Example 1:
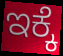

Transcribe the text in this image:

ಇಕ್ಕೆ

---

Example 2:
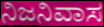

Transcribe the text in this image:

ನಿಜನಿವಾಸ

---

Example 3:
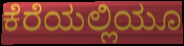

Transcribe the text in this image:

ಕೆರೆಯಲ್ಲಿಯೂ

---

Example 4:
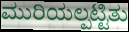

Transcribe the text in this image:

ಮುರಿಯಲ್ಪಟ್ಟಿತು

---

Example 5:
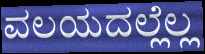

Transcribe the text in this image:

ವಲಯದಲ್ಲೆಲ್ಲ